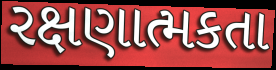
રક્ષણાત્મકતા